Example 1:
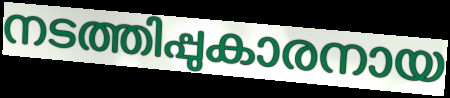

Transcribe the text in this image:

നടത്തിപ്പുകാരനായ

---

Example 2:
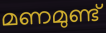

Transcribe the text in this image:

മണമുണ്ട്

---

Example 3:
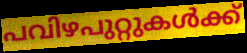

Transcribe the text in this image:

പവിഴപുറ്റുകൾക്ക്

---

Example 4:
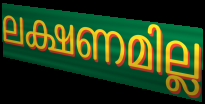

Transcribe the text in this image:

ലക്ഷണമില്ല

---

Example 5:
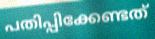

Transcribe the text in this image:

പതിപ്പിക്കേണ്ടത്